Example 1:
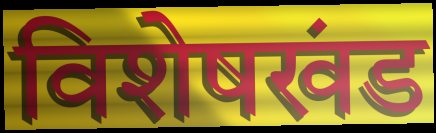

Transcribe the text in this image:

विशेषखंड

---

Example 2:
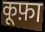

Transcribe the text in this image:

कूफ़ा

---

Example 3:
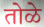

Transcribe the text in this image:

तोळे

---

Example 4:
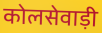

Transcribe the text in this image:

कोलसेवाड़ी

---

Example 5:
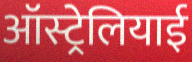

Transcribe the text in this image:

ऑस्‍ट्रेलियाई